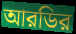
আরডির